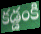
కడ్డంకి